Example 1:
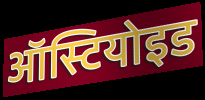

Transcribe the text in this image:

ऑस्टियोइड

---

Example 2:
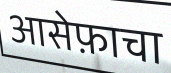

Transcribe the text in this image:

आसेफ़ाचा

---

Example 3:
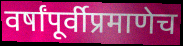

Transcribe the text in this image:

वर्षांपूर्वीप्रमाणेच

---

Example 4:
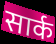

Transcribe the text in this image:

सार्क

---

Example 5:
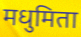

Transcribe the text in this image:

मधुमिता